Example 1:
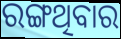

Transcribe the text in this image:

ରଙ୍ଗଥିବାର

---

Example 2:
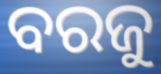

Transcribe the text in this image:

ବରଜୁ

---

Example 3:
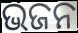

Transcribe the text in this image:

ଭଜନ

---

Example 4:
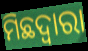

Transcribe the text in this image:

ମିଛଦ୍ଵାରା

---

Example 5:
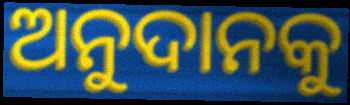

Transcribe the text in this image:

ଅନୁଦାନକୁ